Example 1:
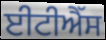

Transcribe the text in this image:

ਈਟੀਐੱਸ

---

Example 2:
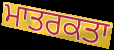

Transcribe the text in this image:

ਮਾਤਰਕਤਾ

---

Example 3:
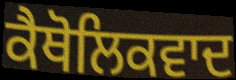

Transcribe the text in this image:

ਕੈਥੋਲਿਕਵਾਦ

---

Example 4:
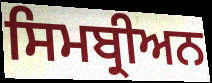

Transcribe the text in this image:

ਸਿਮਬ੍ਰੀਅਨ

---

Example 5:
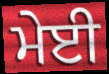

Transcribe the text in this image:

ਮੇਈ